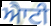
ਐਾਟੀ